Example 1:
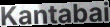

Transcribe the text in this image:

Kantabai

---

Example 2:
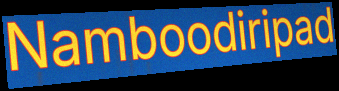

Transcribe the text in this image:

Namboodiripad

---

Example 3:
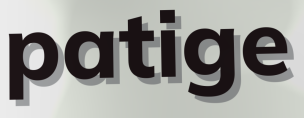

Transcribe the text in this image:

patige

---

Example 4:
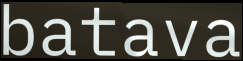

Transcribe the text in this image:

batava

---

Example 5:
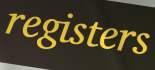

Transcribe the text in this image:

registers